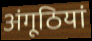
अंगूठियां